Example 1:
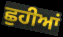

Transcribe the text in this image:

ਛੁਹੀਆਂ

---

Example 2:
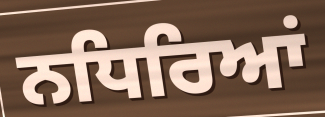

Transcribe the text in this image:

ਨਧਿਰਿਆਂ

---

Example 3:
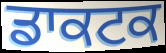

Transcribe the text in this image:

ਡਾਕਟਕ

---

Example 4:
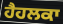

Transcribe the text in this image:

ਹੈਹਲਕਾ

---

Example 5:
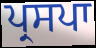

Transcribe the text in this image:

ਪ੍ਰਸਪਾ